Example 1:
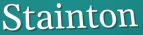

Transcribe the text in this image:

Stainton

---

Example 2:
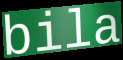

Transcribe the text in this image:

bila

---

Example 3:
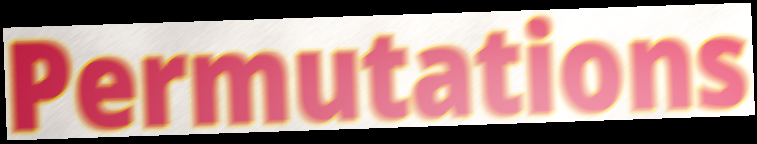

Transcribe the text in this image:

Permutations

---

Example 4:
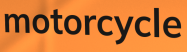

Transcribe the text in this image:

motorcycle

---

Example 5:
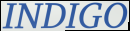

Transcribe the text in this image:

INDIGO